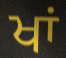
ਖਾਂ